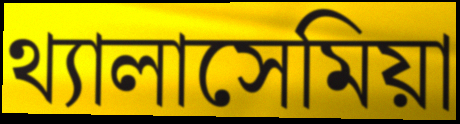
থ্যালাসেমিয়া